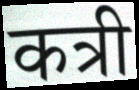
कत्री